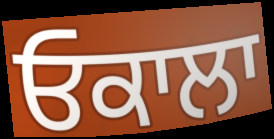
ਓਕਾਲਾ